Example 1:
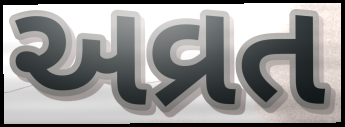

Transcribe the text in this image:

અવ્રત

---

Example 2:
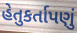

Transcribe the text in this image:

હેતુકર્તાપણું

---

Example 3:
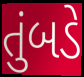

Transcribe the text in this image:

તુંબડે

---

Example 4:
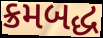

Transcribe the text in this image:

ક્રમબદ્ધ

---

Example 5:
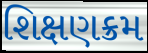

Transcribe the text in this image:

શિક્ષણક્રમ